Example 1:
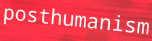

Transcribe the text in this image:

posthumanism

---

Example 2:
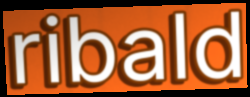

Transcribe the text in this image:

ribald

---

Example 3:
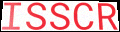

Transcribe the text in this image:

ISSCR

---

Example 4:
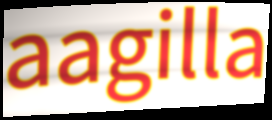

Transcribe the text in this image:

aagilla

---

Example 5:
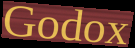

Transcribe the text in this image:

Godox